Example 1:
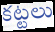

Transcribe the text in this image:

కట్టలు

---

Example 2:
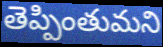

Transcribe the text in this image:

తెప్పింతుమని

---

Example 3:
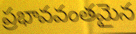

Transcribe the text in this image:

ప్రభావవంతమైన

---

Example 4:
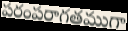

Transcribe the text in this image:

పరంపరాగతముగా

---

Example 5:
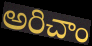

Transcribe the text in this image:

అరిచాం